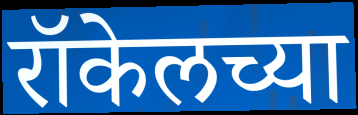
रॉकेलच्या